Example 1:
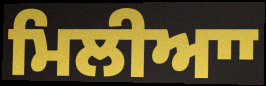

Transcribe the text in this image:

ਮਿਲੀਆਾ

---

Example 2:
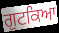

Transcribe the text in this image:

ਗੁਟਕਿਆ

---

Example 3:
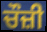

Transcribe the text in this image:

ਚੌਜ਼ੀ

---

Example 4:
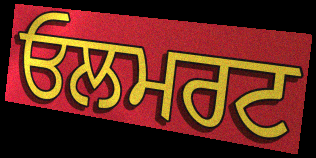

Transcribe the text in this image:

ਓਲਮਰਟ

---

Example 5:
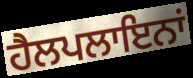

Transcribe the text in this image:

ਹੈਲਪਲਾਇਨਾਂ